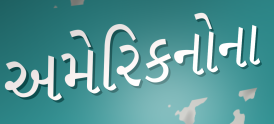
અમેરિકનોના